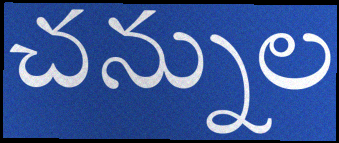
చన్నుల